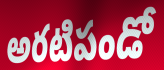
అరటిపండో